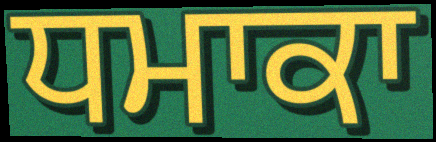
ਧਮਾਕਾ